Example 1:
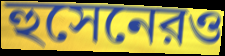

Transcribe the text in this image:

হুসেনেরও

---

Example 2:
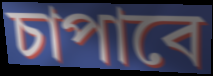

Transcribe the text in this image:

চাপাবে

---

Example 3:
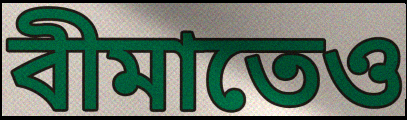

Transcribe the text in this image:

বীমাতেও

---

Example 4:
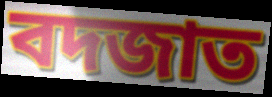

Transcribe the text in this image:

বদজাত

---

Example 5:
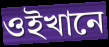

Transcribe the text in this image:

ওইখানে